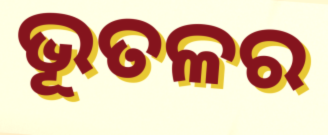
ଭୂତଳର